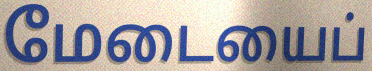
மேடையைப்